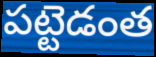
పట్టెడంత